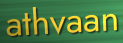
athvaan